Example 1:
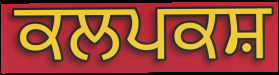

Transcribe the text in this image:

ਕਲਪਕਸ਼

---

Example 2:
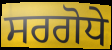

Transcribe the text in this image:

ਸਰਗੋਧੇ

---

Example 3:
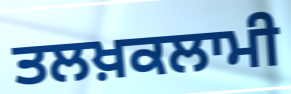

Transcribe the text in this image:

ਤਲਖ਼ਕਲਾਮੀ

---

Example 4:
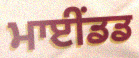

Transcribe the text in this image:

ਮਾਈਂਡਡ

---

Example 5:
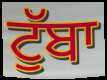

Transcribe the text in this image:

ਟੁੱਬਾ